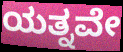
ಯತ್ನವೇ